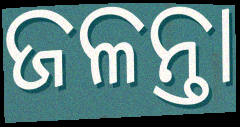
ଜଳନ୍ତା